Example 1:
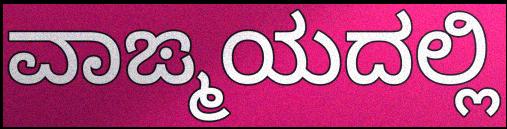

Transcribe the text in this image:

ವಾಙ್ಮಯದಲ್ಲಿ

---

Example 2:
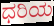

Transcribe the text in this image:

ಧರಿಯ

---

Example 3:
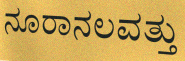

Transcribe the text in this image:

ನೂರಾನಲವತ್ತು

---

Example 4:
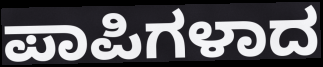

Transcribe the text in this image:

ಪಾಪಿಗಳಾದ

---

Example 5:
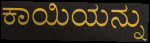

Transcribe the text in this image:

ಕಾಯಿಯನ್ನು